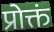
प्रोक्तं